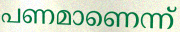
പണമാണെന്ന്